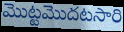
మొట్టమొదటసారి